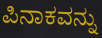
ಪಿನಾಕವನ್ನು